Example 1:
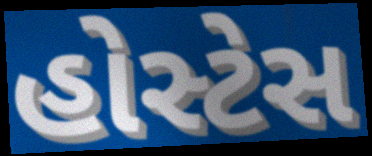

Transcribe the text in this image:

હોસ્ટેસ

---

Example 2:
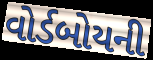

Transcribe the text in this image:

વોર્ડબોયની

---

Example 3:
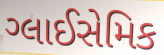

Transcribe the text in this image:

ગ્લાઈસેમિક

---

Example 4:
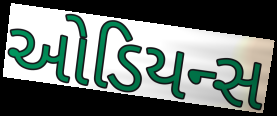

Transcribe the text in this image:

ઓડિયન્સ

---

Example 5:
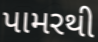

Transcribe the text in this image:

પામરથી